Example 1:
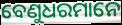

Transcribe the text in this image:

ବେଣୁଧରମାନେ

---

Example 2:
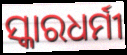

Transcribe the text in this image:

ସ୍କାରଧର୍ମୀ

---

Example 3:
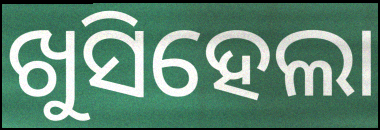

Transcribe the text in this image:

ଖୁସିହେଲା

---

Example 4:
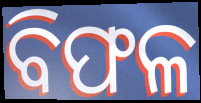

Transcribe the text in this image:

ବିଫଳ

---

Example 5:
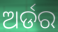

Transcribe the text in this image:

ଅର୍ଡର